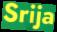
Srija